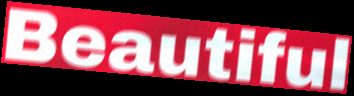
Beautiful